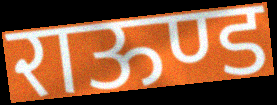
राऊण्ड